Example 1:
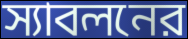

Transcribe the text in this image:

স্যাবলনের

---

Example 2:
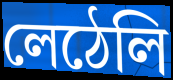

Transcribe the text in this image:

লেঠেলি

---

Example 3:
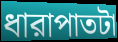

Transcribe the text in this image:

ধারাপাতটা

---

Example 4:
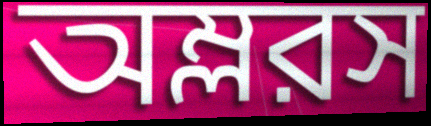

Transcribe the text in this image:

অম্লরস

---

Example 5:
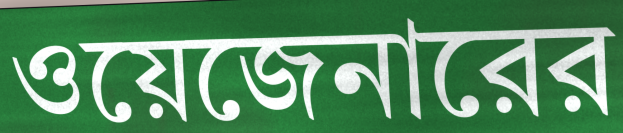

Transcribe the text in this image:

ওয়েজেনারের